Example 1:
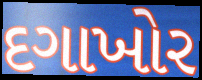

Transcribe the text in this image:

દગાખોર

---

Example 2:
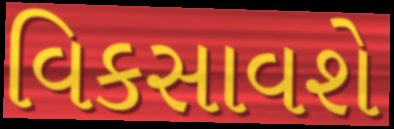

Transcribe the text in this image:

વિકસાવશે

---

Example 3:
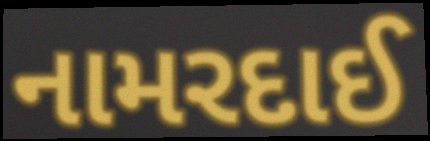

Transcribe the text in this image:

નામરદાઈ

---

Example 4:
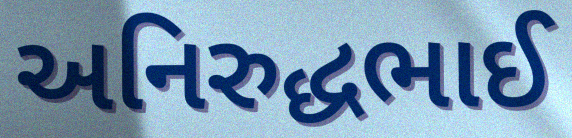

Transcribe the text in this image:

અનિરુદ્ધભાઈ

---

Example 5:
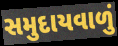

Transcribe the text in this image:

સમુદાયવાળું